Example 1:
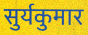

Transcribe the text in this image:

सुर्यकुमार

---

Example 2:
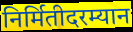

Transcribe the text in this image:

निर्मितीदरम्यान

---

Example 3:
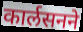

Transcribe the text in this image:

कार्लसनने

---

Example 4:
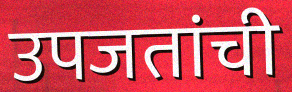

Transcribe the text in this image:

उपजतांची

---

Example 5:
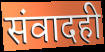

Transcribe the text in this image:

संवादही